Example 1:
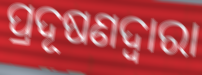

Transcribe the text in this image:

ପ୍ରଦୂଷଣଦ୍ବାରା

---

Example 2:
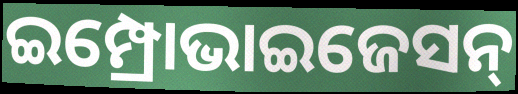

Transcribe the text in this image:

ଇମ୍ପ୍ରୋଭାଇଜେସନ୍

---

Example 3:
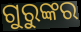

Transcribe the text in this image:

ଗୁରୁଙ୍କର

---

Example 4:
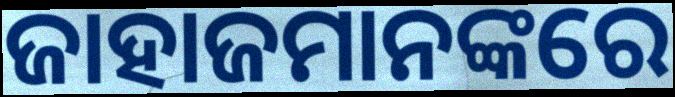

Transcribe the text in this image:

ଜାହାଜମାନଙ୍କରେ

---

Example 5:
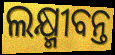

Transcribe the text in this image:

ଲକ୍ଷ୍ମୀବନ୍ତ